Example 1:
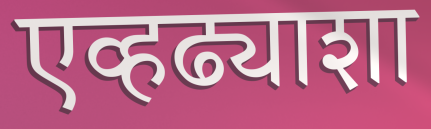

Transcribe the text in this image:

एव्हढ्याशा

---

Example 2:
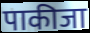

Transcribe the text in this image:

पाकीजा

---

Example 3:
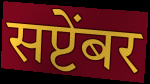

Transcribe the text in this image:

सप्टेंबर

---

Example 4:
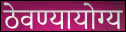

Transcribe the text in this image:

ठेवण्यायोग्य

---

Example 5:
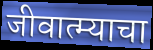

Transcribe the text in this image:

जीवात्म्याचा